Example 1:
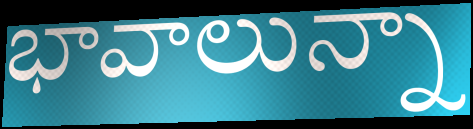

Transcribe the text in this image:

భావాలున్నా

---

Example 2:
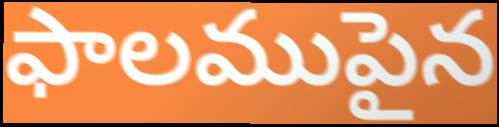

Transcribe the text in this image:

ఫాలముపైన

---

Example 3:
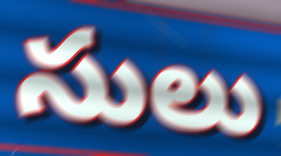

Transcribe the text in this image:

సులు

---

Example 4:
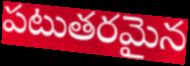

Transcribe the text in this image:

పటుతరమైన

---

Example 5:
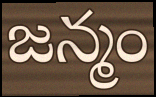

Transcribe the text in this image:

జన్మం